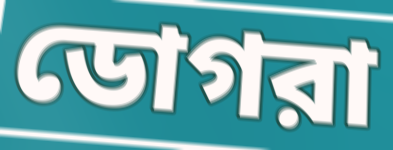
ডোগরা